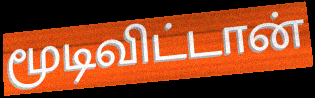
மூடிவிட்டான்